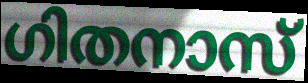
ഗിതനാസ്